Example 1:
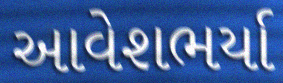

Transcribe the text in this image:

આવેશભર્યા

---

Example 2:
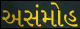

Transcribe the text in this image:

અસંમોહ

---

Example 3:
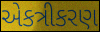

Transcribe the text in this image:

એકત્રીકરણ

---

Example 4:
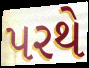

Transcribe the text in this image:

પરથે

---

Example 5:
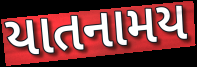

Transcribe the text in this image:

યાતનામય